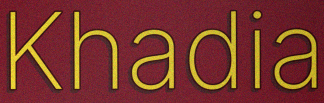
Khadia